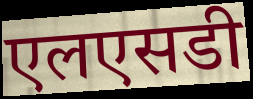
एलएसडी